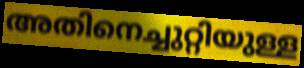
അതിനെച്ചുറ്റിയുള്ള